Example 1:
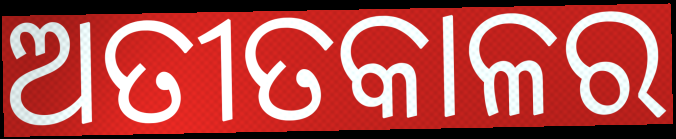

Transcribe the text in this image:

ଅତୀତକାଳର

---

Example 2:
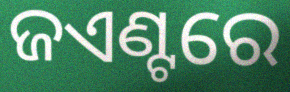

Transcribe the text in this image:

ଜଏଣ୍ଟରେ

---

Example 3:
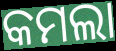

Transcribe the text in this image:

କମଲା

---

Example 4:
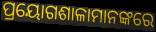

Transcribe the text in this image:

ପ୍ରୟୋଗଶାଳାମାନଙ୍କରେ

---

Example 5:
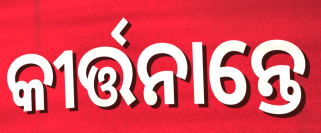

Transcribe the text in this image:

କୀର୍ତ୍ତନାନ୍ତେ